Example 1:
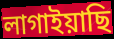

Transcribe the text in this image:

লাগাইয়াছি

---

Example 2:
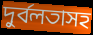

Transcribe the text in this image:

দুর্বলতাসহ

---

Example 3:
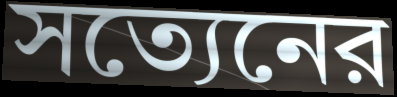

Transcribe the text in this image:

সত্যেনের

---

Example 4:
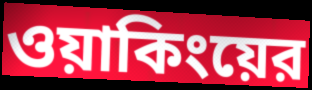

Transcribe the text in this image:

ওয়াকিংয়ের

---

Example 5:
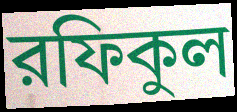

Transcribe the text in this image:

রফিকুল